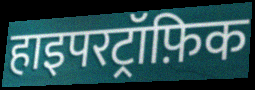
हाइपरट्रॉफ़िक